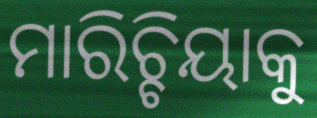
ମାରିଚ୍ଚିୟାକୁ